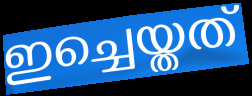
ഇച്ചെയ്തത്